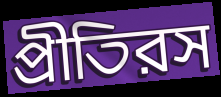
প্রীতিরস